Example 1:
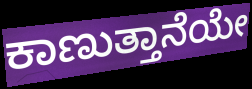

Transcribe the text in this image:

ಕಾಣುತ್ತಾನೆಯೇ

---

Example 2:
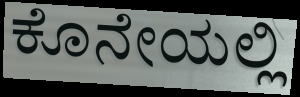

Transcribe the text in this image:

ಕೊನೇಯಲ್ಲಿ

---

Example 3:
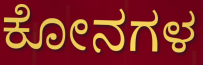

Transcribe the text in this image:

ಕೋನಗಳ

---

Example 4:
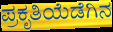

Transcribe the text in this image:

ಪ್ರಕೃತಿಯೆಡೆಗಿನ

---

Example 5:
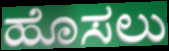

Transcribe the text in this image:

ಹೊಸಲು